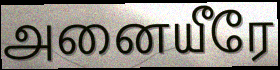
அனையீரே